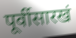
पूर्वीसारखं